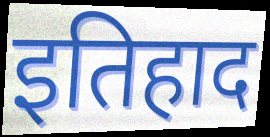
इतिहाद